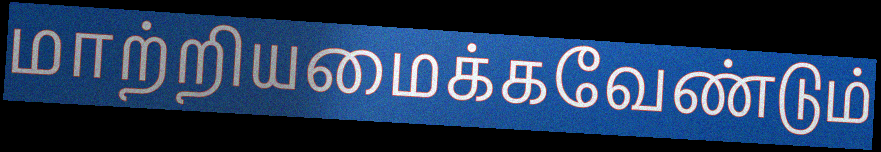
மாற்றியமைக்கவேண்டும்